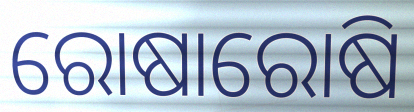
ରୋଷାରୋଷି